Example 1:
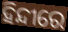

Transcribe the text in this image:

ହିନ୍ଦୀରେ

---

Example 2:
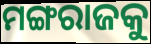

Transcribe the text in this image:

ମଙ୍ଗରାଜକୁ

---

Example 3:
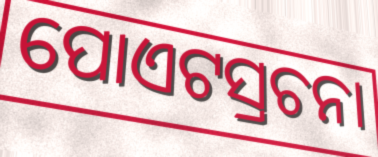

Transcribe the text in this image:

ପୋଏଟସ୍ରଚନା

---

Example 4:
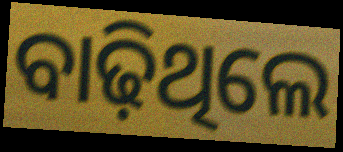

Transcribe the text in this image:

ବାଢ଼ିଥିଲେ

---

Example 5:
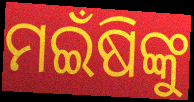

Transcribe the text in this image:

ମଇଁଷିଙ୍କୁ